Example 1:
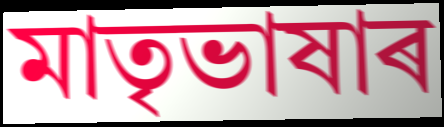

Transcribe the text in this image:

মাতৃভাষাৰ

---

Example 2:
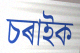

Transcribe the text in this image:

চৰাইক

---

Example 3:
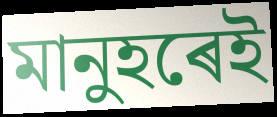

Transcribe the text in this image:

মানুহৰেই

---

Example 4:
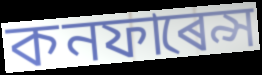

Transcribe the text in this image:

কনফাৰেন্স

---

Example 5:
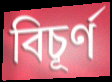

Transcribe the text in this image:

বিচূৰ্ণ